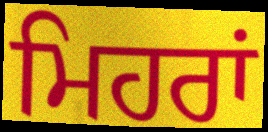
ਮਿਹਰਾਂ